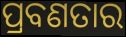
ପ୍ରବଣତାର